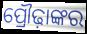
ପ୍ରୌଢ଼ାଙ୍କର